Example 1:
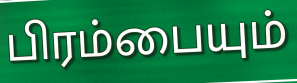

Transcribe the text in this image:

பிரம்பையும்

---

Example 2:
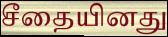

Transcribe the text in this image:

சீதையினது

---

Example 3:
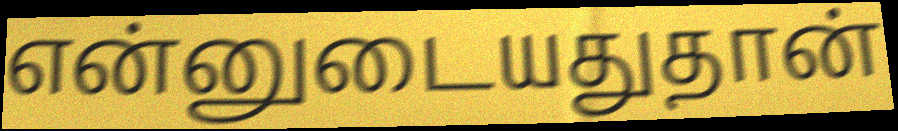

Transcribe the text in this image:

என்னுடையதுதான்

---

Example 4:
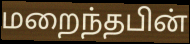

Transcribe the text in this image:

மறைந்தபின்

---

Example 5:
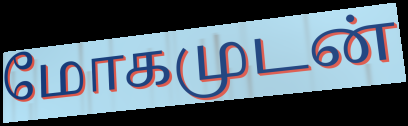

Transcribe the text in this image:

மோகமுடன்